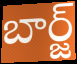
బార్జ్